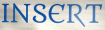
INSERT